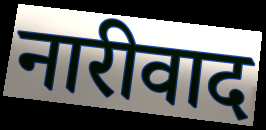
नारीवाद